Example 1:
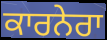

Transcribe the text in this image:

ਕਾਰਨੇਰਾ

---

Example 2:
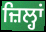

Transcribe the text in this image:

ਜ਼ਿਲ੍ਹਾਂ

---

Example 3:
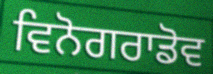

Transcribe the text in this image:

ਵਿਨੋਗਰਾਡੋਵ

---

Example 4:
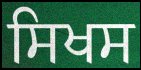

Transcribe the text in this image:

ਸਿਖਸ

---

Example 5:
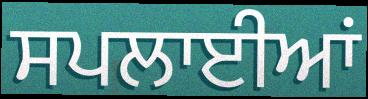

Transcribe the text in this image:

ਸਪਲਾਈਆਂ